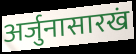
अर्जुनासारखं